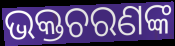
ଭକ୍ତଚରଣଙ୍କ